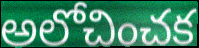
అలోచించక